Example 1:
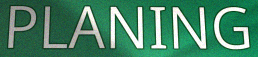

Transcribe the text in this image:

PLANING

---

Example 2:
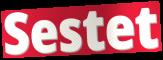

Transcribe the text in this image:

Sestet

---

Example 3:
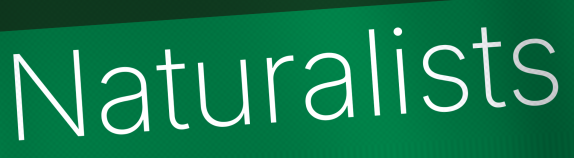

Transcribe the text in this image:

Naturalists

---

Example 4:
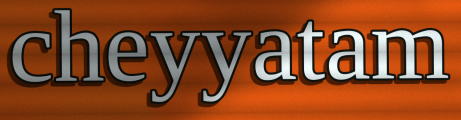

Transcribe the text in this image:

cheyyatam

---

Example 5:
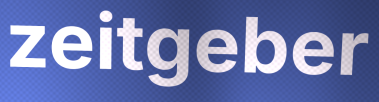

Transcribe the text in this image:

zeitgeber